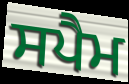
ਸਪੈਮ